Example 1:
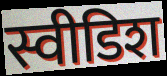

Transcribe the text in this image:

स्वीडिश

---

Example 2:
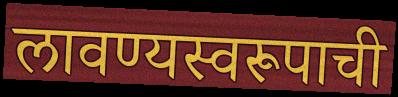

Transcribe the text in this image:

लावण्यस्वरूपाची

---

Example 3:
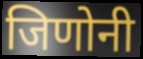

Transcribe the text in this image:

जिणोनी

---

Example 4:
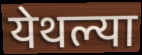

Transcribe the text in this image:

येथल्या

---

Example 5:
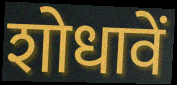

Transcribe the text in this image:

शोधावें